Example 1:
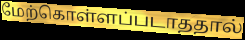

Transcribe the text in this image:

மேற்கொள்ளப்படாததால்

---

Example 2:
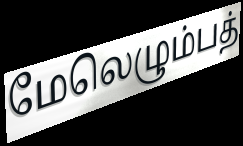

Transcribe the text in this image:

மேலெழும்பத்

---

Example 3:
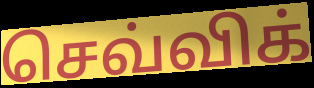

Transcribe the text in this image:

செவ்விக்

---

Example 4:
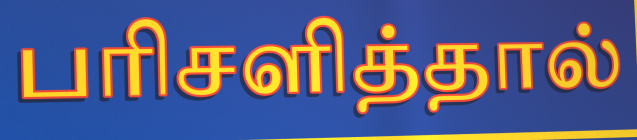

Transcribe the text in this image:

பரிசளித்தால்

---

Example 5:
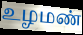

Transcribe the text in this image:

உழமண்